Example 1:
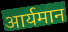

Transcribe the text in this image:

आर्यमान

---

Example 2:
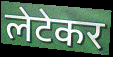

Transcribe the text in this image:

लेटेकर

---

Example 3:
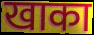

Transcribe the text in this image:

खाका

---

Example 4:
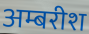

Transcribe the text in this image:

अम्बरीश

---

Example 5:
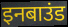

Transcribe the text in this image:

इनबाउंड